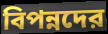
বিপন্নদের